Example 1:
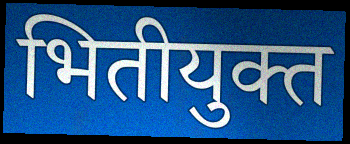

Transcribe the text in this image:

भितीयुक्त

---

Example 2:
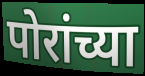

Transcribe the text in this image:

पोरांच्या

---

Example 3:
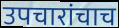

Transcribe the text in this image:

उपचारांचाच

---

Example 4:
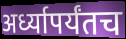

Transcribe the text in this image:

अर्ध्यापर्यंतच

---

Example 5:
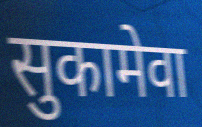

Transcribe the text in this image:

सुकामेवा